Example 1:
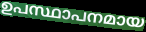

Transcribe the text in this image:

ഉപസ്ഥാപനമായ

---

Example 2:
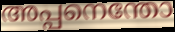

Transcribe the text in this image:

അപ്പനെന്തോ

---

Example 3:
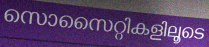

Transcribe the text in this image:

സൊസൈറ്റികളിലൂടെ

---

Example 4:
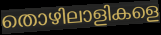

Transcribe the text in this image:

തൊഴിലാളികളെ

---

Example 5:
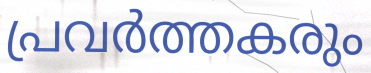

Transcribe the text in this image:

പ്രവർത്തകരും